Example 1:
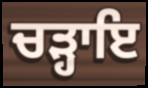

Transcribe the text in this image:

ਚੜ੍ਹਾਇ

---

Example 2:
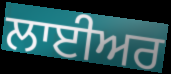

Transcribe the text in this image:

ਲਾਈਅਰ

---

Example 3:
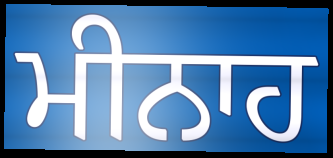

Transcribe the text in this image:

ਮੀਨਾਹ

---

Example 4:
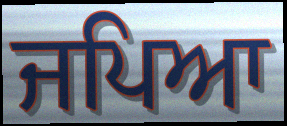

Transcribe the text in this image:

ਜਪਿਆ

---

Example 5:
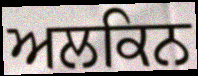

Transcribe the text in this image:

ਅਲਕਿਨ